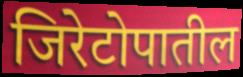
जिरेटोपातील